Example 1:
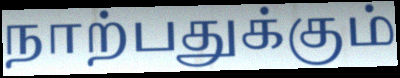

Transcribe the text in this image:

நாற்பதுக்கும்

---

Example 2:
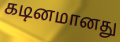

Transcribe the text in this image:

கடினமானது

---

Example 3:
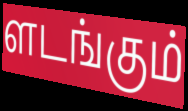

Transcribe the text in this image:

ளடங்கும்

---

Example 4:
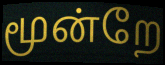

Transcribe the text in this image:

மூன்றே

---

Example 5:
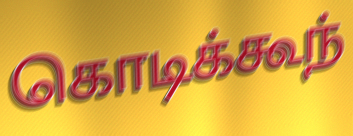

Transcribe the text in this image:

கொடிக்கூந்